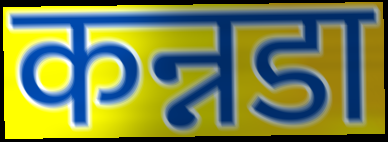
कन्नडा